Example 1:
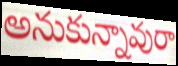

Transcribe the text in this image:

అనుకున్నావురా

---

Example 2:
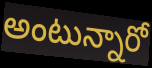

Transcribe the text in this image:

అంటున్నారో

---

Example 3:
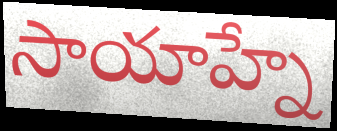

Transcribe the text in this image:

సాయాహ్నే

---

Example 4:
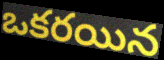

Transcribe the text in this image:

ఒకరయిన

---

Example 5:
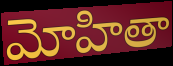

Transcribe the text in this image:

మోహితా